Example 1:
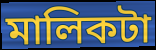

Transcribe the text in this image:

মালিকটা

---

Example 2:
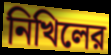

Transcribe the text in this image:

নিখিলের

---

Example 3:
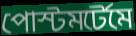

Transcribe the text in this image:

পোস্টমর্টেমে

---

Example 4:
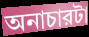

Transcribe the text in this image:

অনাচারটা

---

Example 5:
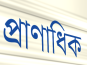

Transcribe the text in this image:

প্রাণাধিক